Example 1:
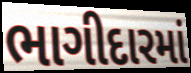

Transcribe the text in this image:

ભાગીદારમાં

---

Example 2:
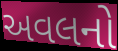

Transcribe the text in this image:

અવલનો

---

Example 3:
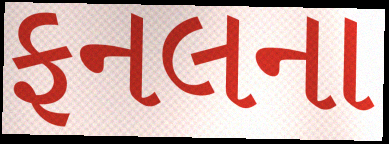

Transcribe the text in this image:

ફનલના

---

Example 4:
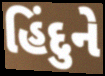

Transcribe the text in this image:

હિંદુને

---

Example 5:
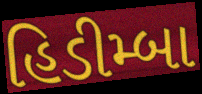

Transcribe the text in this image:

હિડીમ્બા